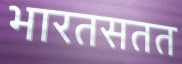
भारतसतत